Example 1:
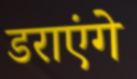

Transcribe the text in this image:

डराएंगे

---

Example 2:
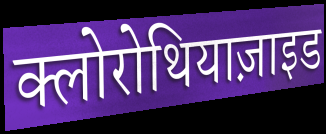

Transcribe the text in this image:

क्लोरोथियाज़ाइड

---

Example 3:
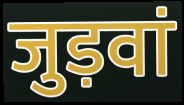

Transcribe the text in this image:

जुड़वां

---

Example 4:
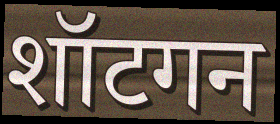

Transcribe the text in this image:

शॉटगन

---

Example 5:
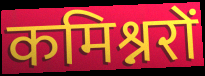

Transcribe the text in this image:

कमिश्नरों